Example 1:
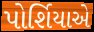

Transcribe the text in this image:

પોર્શિયાએ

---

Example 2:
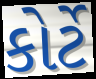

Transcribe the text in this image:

કોર્ટે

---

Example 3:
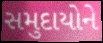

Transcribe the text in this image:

સમુદાયોને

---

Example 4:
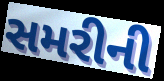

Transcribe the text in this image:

સમરીની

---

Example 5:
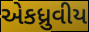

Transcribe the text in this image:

એકધ્રુવીય